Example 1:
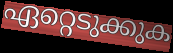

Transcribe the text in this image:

ഏറ്റെടുക്കുക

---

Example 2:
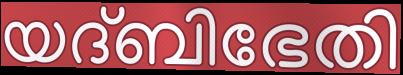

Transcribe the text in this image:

യദ്ബിഭേതി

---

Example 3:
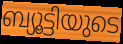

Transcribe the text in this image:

ബ്യൂട്ടിയുടെ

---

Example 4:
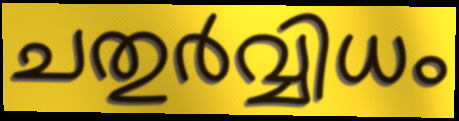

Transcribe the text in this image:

ചതുർവ്വിധം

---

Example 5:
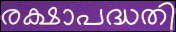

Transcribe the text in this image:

രക്ഷാപദ്ധതി